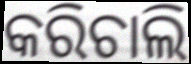
କରିଚାଲି